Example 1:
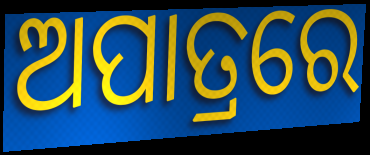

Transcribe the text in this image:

ଅପାତ୍ରରେ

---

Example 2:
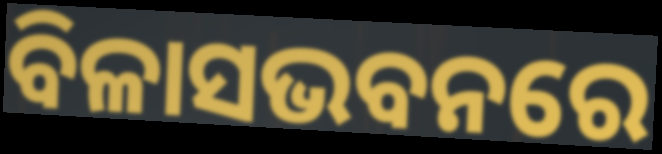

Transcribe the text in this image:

ବିଳାସଭବନରେ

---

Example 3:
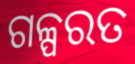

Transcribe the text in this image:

ଗଳ୍ପରତ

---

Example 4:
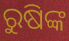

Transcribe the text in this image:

ରୁଷିଙ୍କ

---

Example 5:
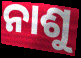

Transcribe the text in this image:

ନାଶୁ